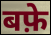
बफ़े